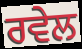
ਰਵੇਲ